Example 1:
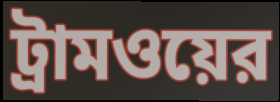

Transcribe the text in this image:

ট্রামওয়ের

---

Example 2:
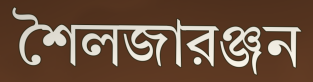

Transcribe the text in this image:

শৈলজারঞ্জন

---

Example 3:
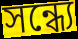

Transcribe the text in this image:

সন্ধ্যে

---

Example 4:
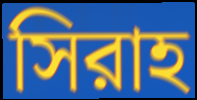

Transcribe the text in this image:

সিরাহ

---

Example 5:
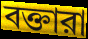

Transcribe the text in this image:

বক্তারা